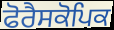
ਫੋਰੈਸਕੋਪਿਕ